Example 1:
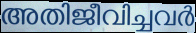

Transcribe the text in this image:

അതിജീവിച്ചവർ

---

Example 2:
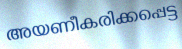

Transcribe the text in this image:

അയണീകരിക്കപ്പെട്ട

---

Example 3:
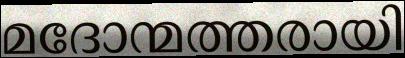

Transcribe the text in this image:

മദോന്മത്തരായി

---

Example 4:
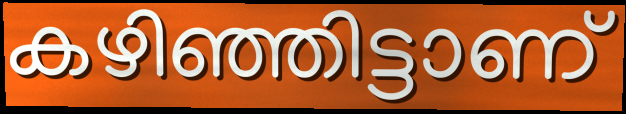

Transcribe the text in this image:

കഴിഞ്ഞിട്ടാണ്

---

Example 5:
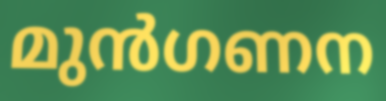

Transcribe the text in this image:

മുൻഗണന